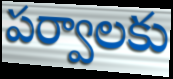
పర్వాలకు